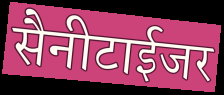
सैनीटाईजर